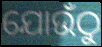
ଯୋଉଁଠୁ